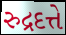
રુદ્રદત્તે